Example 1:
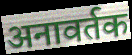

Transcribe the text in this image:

अनावर्तक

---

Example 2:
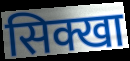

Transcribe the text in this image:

सिक्खा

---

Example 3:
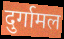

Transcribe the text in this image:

दुर्गामल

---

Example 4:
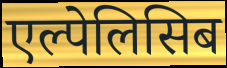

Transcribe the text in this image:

एल्पेलिसिब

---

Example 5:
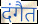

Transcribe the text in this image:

दंगैत